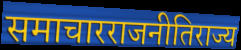
समाचारराजनीतिराज्य